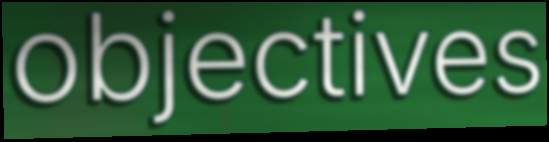
objectives